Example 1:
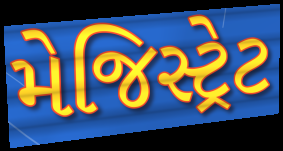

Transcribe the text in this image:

મેજિસ્ટ્રેટ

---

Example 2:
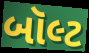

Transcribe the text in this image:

બૉલ્ટ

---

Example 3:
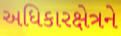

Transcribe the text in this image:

અધિકારક્ષેત્રને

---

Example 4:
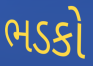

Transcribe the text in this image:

ભડકો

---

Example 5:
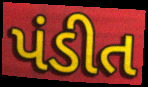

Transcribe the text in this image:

પંડીત